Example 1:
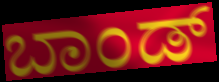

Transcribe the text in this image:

ಬಾಂಡ್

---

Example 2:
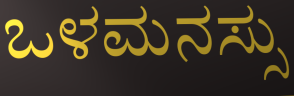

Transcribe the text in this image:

ಒಳಮನಸ್ಸು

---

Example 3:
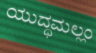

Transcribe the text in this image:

ಯುದ್ಧಮಲ್ಲಂ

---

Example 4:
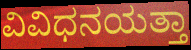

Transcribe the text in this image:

ವಿವಿಧನಯತ್ತಾ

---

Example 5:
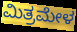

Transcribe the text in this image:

ಮಿತ್ರಮೇಳ